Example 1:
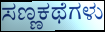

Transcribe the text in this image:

ಸಣ್ಣಕಥೆಗಳು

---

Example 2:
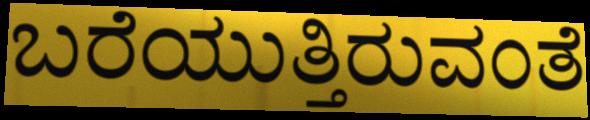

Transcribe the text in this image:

ಬರೆಯುತ್ತಿರುವಂತೆ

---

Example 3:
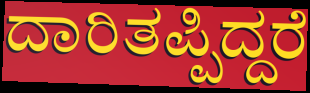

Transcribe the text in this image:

ದಾರಿತಪ್ಪಿದ್ದರೆ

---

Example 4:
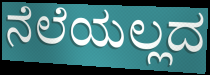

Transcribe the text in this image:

ನೆಲೆಯಲ್ಲದ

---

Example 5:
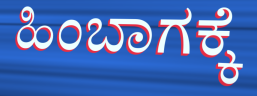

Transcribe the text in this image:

ಹಿಂಬಾಗಕ್ಕೆ